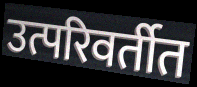
उत्परिवर्तीत